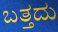
ಬತ್ತದು